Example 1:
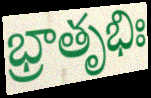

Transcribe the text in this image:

భ్రాతృభిః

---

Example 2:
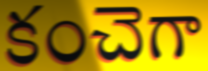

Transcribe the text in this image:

కంచెగా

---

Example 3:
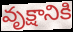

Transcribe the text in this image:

వృక్షానికి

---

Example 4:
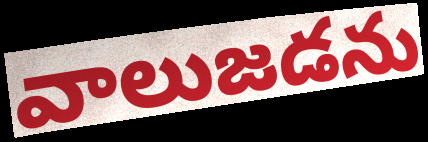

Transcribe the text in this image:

వాలుజడను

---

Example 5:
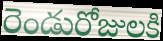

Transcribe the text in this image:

రెండురోజులకి